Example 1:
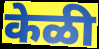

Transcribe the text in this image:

केळी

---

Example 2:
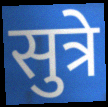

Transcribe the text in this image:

सुत्रे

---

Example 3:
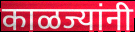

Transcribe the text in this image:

काळज्यांनी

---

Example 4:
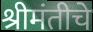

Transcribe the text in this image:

श्रीमंतीचे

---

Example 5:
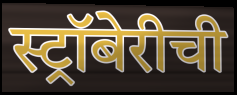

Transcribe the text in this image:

स्ट्रॉबेरीची